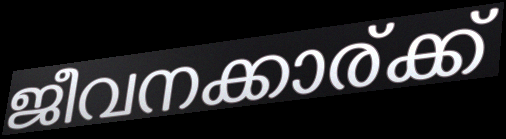
ജീവനക്കാര്ക്ക്